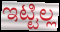
ಇಟ್ಟಿಲ್ಲ